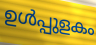
ഉൾപ്പുളകം